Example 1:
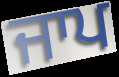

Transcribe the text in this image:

ਜਾਪ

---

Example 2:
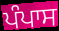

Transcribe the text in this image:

ਪੰਪਾਸ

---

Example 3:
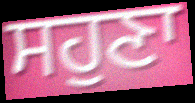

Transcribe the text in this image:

ਸਹੁਣਾ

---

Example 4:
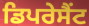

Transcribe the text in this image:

ਡਿਪਰੇਸੈਂਟ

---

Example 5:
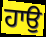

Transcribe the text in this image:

ਹਾਉ